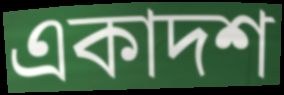
একাদশ